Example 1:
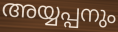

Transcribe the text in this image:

അയ്യപ്പനും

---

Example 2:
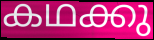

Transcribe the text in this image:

കഥക്കു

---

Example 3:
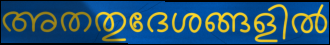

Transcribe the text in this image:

അതതുദേശങ്ങളിൽ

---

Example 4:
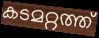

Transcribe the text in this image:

കടമറ്റത്ത്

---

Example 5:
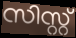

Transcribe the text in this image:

സിസ്റ്റ്